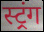
स्ट्रंग